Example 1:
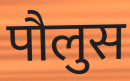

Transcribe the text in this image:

पौलुस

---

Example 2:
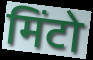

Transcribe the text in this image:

मिंटो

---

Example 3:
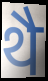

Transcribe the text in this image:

थै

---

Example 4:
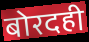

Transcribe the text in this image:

बोरदही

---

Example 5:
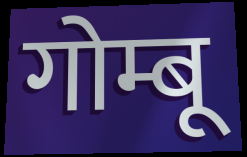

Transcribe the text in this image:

गोम्बू